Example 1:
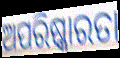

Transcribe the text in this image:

ଅପରିଷ୍କାରତା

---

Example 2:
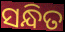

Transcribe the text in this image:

ସନ୍ଧିତ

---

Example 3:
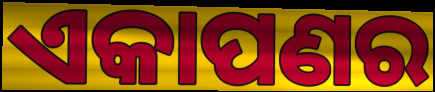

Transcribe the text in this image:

ଏକାପଣର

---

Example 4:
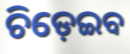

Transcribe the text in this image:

ଚିଡ଼େଇବ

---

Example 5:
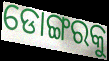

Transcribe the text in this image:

ଡୋଙ୍ଗରକୁ